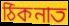
ঠিকনাত